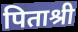
पिताश्री